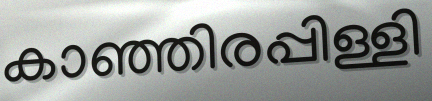
കാഞ്ഞിരപ്പിള്ളി